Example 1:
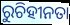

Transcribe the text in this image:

ରୁଚିହୀନତା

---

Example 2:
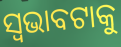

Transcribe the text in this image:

ସ୍ଵଭାବଟାକୁ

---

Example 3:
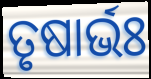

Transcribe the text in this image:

ତୃଷାର୍ଭଃ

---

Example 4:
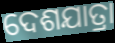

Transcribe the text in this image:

ଦେଶଯାତ୍ରା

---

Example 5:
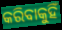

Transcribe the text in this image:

କରିବାକୁହିଁ